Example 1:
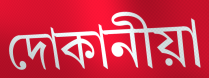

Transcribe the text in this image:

দোকানীয়া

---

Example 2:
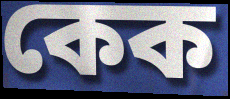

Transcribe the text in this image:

কেক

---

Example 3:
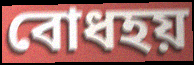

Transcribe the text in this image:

বোধহয়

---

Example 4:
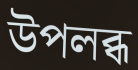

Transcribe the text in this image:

উপলব্ধ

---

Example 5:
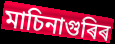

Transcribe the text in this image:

মাচিনাগুৰিৰ